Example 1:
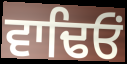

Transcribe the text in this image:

ਵਾਢਿਓਂ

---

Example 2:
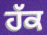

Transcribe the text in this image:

ਹੱਕ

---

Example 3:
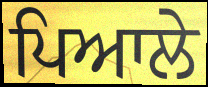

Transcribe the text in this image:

ਪਿਆਲੇ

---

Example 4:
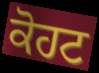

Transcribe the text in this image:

ਕੋਹਟ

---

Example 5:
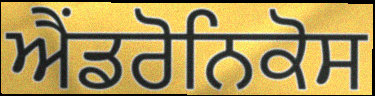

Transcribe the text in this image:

ਐਂਡਰੋਨਿਕੋਸ